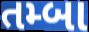
તમ્બા